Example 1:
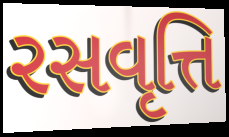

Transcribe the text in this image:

રસવૃત્તિ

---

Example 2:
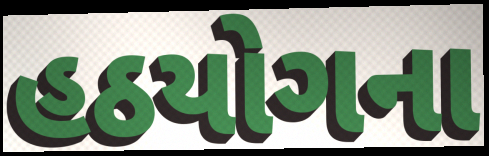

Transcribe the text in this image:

હઠયોગના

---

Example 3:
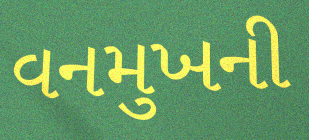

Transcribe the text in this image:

વનમુખની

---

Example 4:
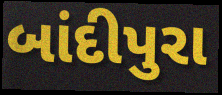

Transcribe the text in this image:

બાંદીપુરા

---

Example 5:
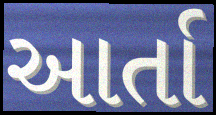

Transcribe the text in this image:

આર્તા